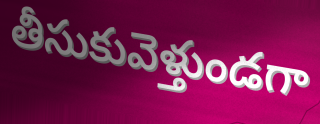
తీసుకువెళ్తుండగా